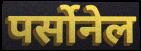
पर्सोनेल